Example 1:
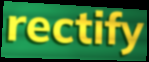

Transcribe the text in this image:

rectify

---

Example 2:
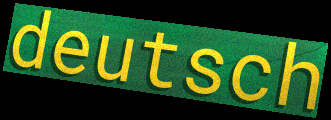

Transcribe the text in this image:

deutsch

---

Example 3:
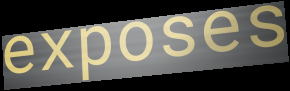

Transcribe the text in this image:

exposes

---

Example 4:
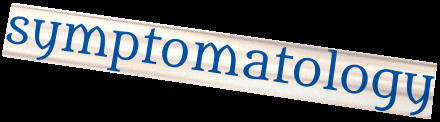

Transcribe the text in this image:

symptomatology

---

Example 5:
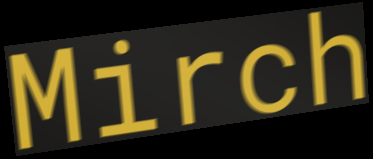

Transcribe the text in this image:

Mirch